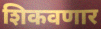
शिकवणार